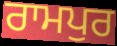
ਰਾਮਪੁਰ